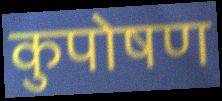
कुपोषण